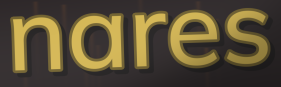
nares